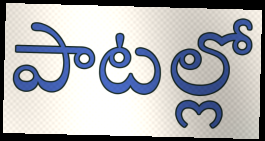
పాటల్లో